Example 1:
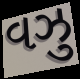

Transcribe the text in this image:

વઝુ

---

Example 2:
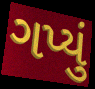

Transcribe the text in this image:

ગપ્યું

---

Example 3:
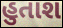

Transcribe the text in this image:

હુતાશ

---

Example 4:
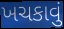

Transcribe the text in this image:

ખચકાવું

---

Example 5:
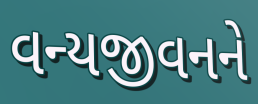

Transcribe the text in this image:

વન્યજીવનને